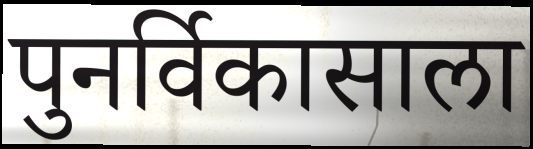
पुनर्विकासाला